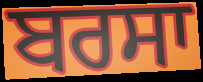
ਬਰਸਾ